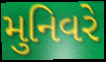
મુનિવરે